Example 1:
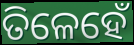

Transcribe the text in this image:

ତିଳେହେଁ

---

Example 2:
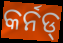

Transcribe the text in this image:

କର୍ନଡ୍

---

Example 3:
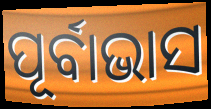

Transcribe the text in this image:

ପୂର୍ବାଭାସ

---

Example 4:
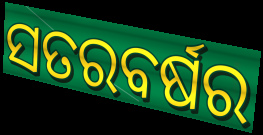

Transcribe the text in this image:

ସତରବର୍ଷର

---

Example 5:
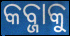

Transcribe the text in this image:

କବ୍ଜାକୁ